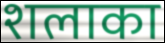
शलाका